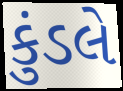
કુંડલે